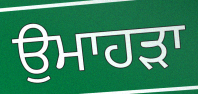
ਉਮਾਹੜਾ